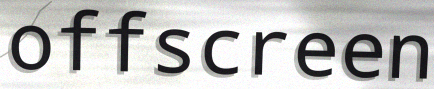
offscreen